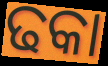
ଢକା